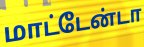
மாட்டேன்டா